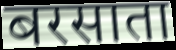
बरसाता